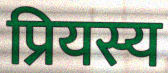
प्रियस्य